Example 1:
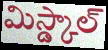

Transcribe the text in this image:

మిస్డ్కాల్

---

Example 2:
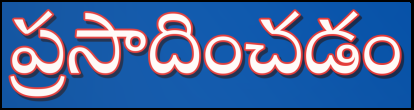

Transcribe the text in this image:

ప్రసాదించడం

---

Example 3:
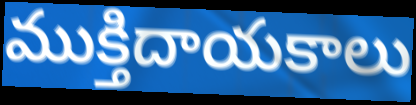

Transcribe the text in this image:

ముక్తిదాయకాలు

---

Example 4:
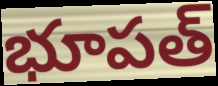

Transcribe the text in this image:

భూపత్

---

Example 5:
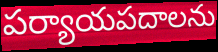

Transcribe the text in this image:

పర్యాయపదాలను